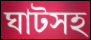
ঘাটসহ